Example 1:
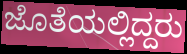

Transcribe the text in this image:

ಜೊತೆಯಲ್ಲಿದ್ದರು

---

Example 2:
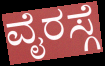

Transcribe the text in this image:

ವೈರಸ್ಗೆ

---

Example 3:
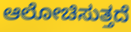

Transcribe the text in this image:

ಆಲೋಚಿಸುತ್ತದೆ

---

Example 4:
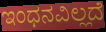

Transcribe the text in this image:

ಇಂಧನವಿಲ್ಲದೆ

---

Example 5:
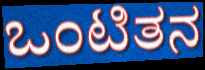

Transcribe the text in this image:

ಒಂಟಿತನ